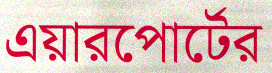
এয়ারপোর্টের